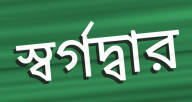
স্বর্গদ্বার